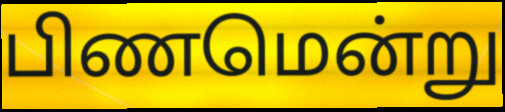
பிணமென்று